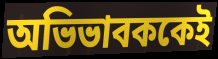
অভিভাবককেই